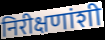
निरीक्षणांशी